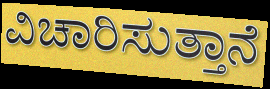
ವಿಚಾರಿಸುತ್ತಾನೆ